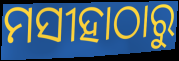
ମସୀହାଠାରୁ